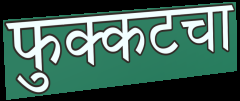
फुक्कटचा